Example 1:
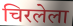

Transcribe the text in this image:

चिरलेला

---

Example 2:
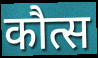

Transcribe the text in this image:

कौत्स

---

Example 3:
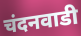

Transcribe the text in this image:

चंदनवाडी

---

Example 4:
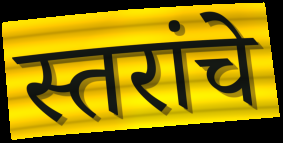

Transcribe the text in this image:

स्तरांचे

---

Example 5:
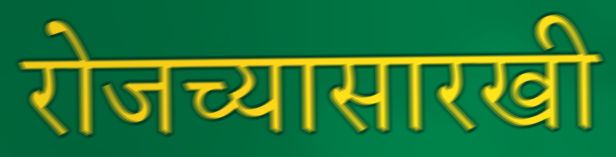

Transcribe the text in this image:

रोजच्यासारखी